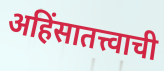
अहिंसातत्त्वाची